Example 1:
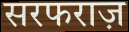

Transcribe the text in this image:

सरफराज़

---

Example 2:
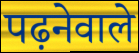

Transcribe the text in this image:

पढ़नेवाले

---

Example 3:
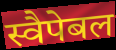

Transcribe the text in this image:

स्वैपेबल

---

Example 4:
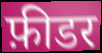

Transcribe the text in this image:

फ़ीडर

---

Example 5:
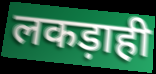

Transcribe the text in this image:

लकड़ाही